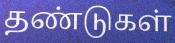
தண்டுகள்